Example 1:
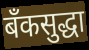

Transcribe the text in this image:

बँकसुद्धा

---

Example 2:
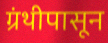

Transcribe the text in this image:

ग्रंथीपासून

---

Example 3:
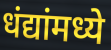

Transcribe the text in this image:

धंद्यांमध्ये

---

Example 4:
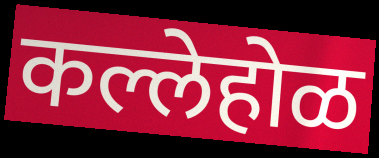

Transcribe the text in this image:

कल्लेहोळ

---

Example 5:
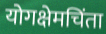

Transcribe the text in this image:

योगक्षेमचिंता